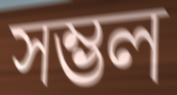
সম্ভল